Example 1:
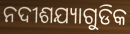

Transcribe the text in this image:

ନଦୀଶଯ୍ୟାଗୁଡିକ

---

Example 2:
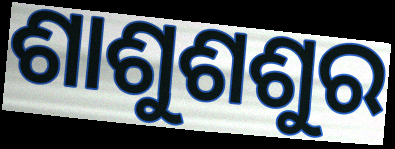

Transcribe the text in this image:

ଶାଶୁଶଶୁର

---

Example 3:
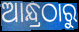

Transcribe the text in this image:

ଆନ୍ଧ୍ରଠାରୁ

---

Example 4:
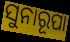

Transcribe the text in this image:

ସୁନାରୂପା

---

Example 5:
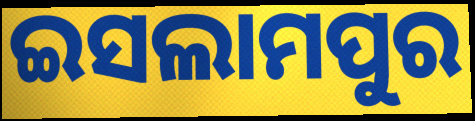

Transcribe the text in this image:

ଇସଲାମପୁର